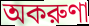
অকরুণা